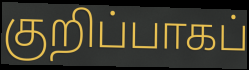
குறிப்பாகப்